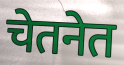
चेतनेत